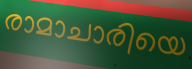
രാമാചാരിയെ